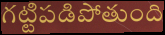
గట్టిపడిపోతుంది